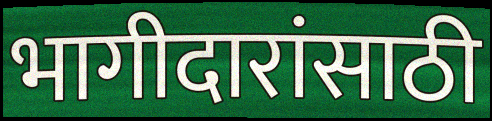
भागीदारांसाठी